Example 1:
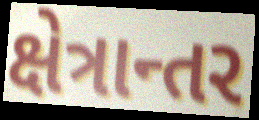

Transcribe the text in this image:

ક્ષેત્રાન્તર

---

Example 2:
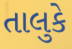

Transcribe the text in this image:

તાલુકે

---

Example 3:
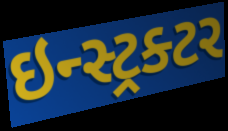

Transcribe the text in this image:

ઇન્સ્ટ્રક્ટર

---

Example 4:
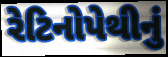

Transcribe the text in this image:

રેટિનોપેથીનું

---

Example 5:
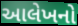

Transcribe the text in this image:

આલેખનો